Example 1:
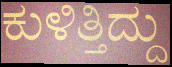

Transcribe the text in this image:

ಕುಳಿತ್ತಿದ್ದು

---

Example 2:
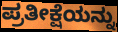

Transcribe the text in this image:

ಪ್ರತೀಕ್ಷೆಯನ್ನು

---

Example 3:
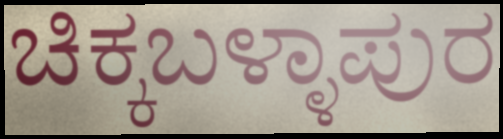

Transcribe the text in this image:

ಚಿಕ್ಕಬಳ್ಳಾಪುರ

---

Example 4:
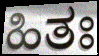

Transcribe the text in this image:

ಹಿತಃ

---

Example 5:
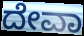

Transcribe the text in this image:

ದೇವಾ